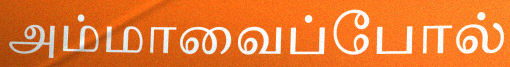
அம்மாவைப்போல்